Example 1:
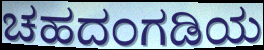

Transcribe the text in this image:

ಚಹದಂಗಡಿಯ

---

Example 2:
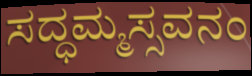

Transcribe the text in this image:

ಸದ್ಧಮ್ಮಸ್ಸವನಂ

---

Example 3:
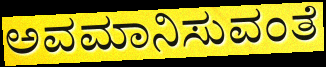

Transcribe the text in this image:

ಅವಮಾನಿಸುವಂತೆ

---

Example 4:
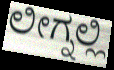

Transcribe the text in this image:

ಲೀಗ್ನಲ್ಲಿ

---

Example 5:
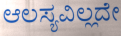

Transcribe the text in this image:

ಆಲಸ್ಯವಿಲ್ಲದೇ